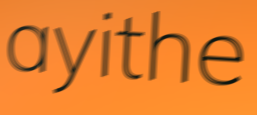
ayithe